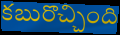
కబురొచ్చింది